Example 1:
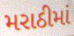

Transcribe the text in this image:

મરાઠીમાં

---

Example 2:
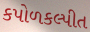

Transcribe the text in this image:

કપોળકલ્પીત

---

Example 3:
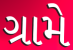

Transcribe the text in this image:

ગ્રામે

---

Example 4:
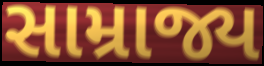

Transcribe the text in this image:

સામ્રાજ્ય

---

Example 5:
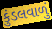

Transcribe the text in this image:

કુંડલવાળું